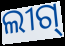
ଲୀଗ୍